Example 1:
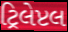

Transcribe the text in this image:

ટ્રિલેપ્ટલ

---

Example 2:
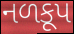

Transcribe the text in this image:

નળકૂપ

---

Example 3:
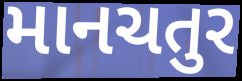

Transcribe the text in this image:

માનચતુર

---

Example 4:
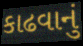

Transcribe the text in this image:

કાઢવાનું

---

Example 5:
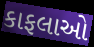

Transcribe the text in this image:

કાફલાઓ